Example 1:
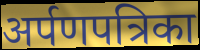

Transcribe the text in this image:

अर्पणपत्रिका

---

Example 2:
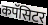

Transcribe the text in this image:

कपॅसिटर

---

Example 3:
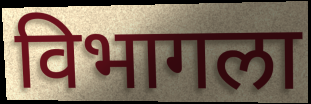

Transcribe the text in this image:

विभागला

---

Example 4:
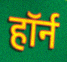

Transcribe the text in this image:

हॉर्न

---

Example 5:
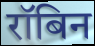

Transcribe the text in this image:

रॉबिन